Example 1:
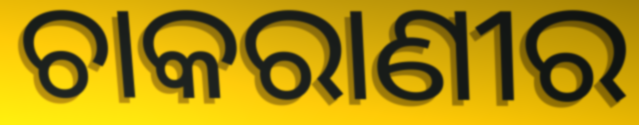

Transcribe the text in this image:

ଚାକରାଣୀର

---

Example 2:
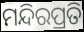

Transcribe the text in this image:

ମନ୍ଦିରପ୍ରତି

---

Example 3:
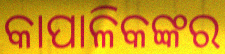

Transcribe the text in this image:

କାପାଳିକଙ୍କର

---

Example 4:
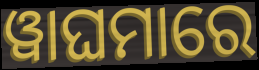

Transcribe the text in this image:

ୱାଘମାରେ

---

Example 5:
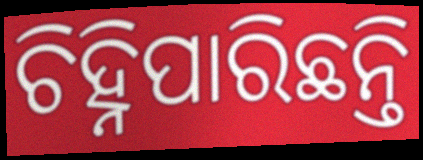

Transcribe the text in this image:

ଚିହ୍ନିପାରିଛନ୍ତି